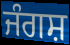
ਜੰਗਸ਼